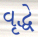
વૃદ્ધે